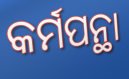
କର୍ମପନ୍ଥା